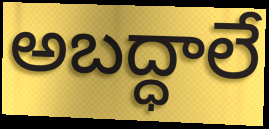
అబద్ధాలే